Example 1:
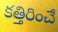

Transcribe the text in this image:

కత్తిరించే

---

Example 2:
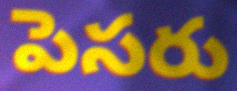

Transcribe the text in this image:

పెసరు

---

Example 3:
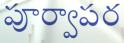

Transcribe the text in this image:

పూర్వాపర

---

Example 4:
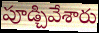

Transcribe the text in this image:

పూడ్చివేశారు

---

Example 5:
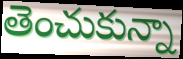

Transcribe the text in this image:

తెంచుకున్నా